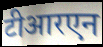
टीआरएन